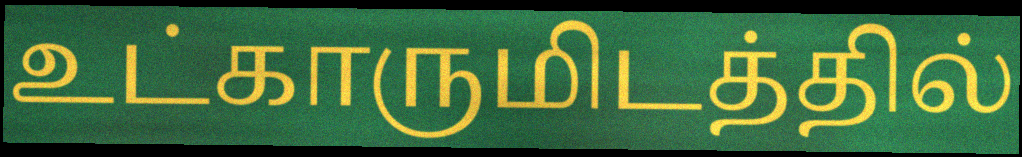
உட்காருமிடத்தில்